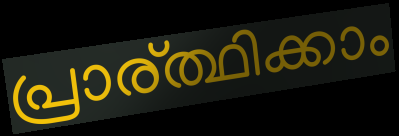
പ്രാര്ത്ഥിക്കാം